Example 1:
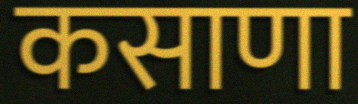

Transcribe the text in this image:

कसाणा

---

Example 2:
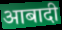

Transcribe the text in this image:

आबादी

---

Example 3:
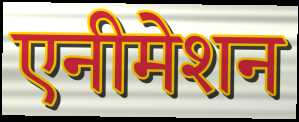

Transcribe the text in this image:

एनीमेशन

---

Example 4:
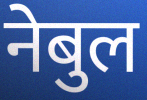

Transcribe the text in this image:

नेबुल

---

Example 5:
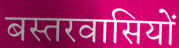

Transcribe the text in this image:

बस्तरवासियों